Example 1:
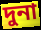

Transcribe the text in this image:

দুনা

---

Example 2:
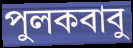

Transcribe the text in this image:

পুলকবাবু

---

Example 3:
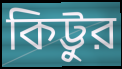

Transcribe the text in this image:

কিট্টুর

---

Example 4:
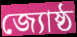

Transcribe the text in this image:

জ্যোষ্ঠ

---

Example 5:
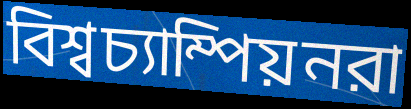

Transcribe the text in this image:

বিশ্বচ্যাম্পিয়নরা